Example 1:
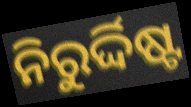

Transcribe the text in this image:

ନିରୁର୍ଦ୍ଦିଷ୍ଟ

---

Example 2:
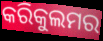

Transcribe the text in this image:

କରିକୁଲମର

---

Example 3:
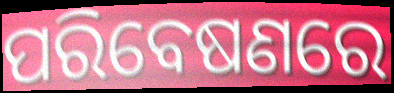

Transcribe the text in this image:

ପରିବେଷଣରେ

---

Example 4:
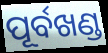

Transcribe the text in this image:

ପୂର୍ବଖଣ୍ଡ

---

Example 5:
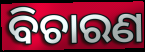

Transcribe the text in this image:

ବିଚାରଣ